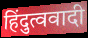
हिंदुत्ववादी